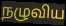
நழுவிய